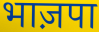
भाज़पा